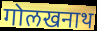
गोलखनाथ